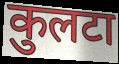
कुलटा